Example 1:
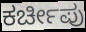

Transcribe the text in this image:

ಕರ್ಚೀಪು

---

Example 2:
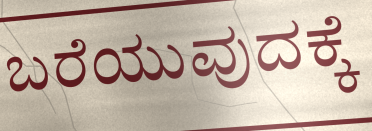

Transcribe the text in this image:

ಬರೆಯುವುದಕ್ಕೆ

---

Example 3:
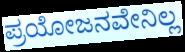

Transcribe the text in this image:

ಪ್ರಯೋಜನವೇನಿಲ್ಲ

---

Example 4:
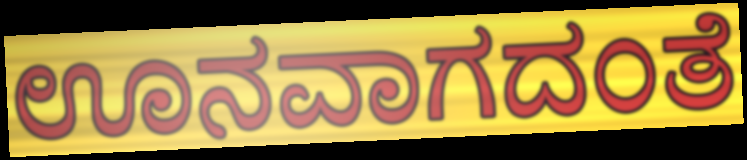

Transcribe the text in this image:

ಊನವಾಗದಂತೆ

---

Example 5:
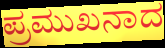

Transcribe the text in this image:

ಪ್ರಮುಖನಾದ